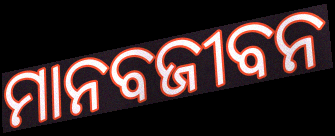
ମାନବଜୀବନ